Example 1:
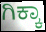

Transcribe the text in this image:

ಗಿಕ್ಕಾ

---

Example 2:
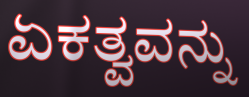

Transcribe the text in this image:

ಏಕತ್ವವನ್ನು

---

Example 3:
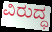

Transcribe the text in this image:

ವಿರುದ್ಧ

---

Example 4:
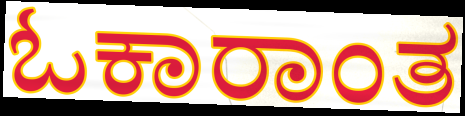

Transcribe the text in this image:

ಓಕಾರಾಂತ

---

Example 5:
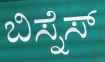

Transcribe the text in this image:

ಬಿಸ್ನೆಸ್